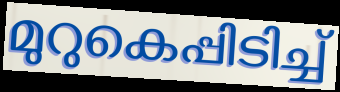
മുറുകെപ്പിടിച്ച്